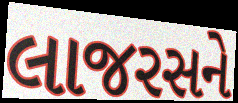
લાજરસને